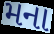
મના